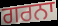
ਗਰਨਾ